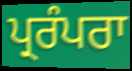
ਪ੍ਰਰੰਪਰਾ